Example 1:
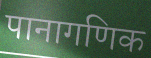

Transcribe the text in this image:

पानागणिक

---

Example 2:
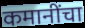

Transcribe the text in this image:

कमानींचा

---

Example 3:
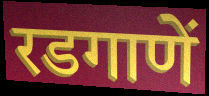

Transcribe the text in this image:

रडगाणें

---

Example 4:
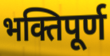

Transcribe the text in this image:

भक्तिपूर्ण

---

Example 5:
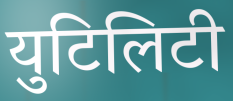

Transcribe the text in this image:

युटिलिटी